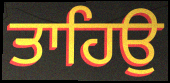
ਤਾਹਿਉ